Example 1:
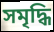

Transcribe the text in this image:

সমৃদ্ধি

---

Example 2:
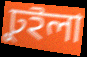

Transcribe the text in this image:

ঢুইলা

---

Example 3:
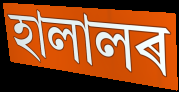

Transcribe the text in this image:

হালালৰ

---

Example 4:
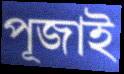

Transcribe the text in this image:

পূজাই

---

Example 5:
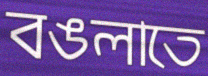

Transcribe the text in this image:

বঙলাতে